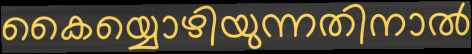
കൈയ്യൊഴിയുന്നതിനാൽ